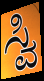
ಸ್ವಿ